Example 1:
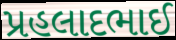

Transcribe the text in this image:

પ્રહલાદભાઈ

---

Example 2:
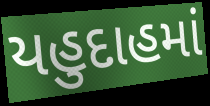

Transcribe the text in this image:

યહુદાહમાં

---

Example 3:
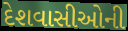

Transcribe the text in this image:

દેશવાસીઓની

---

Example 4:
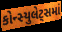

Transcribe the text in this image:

કોન્સ્યુલેટ્સમાં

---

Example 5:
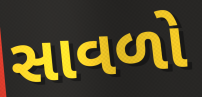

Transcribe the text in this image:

સાવળો